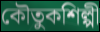
কৌতুকশিল্পী